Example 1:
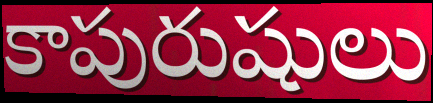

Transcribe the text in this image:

కాపురుషులు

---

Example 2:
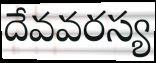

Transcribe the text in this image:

దేవవరస్య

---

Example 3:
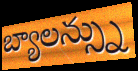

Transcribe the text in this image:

బ్యాలన్స్ను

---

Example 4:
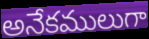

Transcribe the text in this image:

అనేకములుగా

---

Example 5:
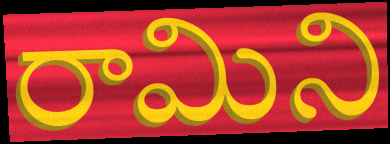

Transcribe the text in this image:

రామిని